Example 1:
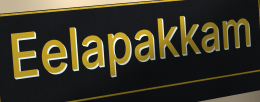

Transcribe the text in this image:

Eelapakkam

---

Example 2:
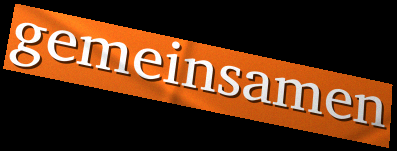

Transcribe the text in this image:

gemeinsamen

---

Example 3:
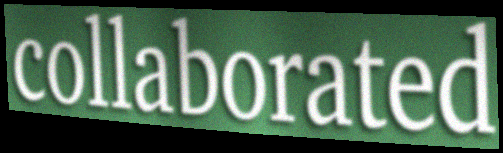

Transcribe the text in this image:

collaborated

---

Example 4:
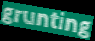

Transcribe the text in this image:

grunting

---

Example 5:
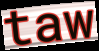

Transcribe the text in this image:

taw